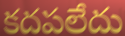
కదపలేదు